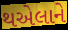
થએલાને